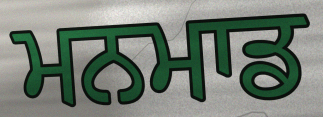
ਮਨਮਾਡ